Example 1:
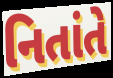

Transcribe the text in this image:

નિતાંતે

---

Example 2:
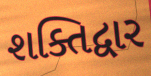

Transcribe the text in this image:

શક્તિદ્વાર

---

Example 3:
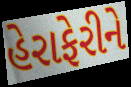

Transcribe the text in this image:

હેરાફેરીને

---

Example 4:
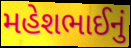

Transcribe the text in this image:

મહેશભાઈનું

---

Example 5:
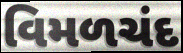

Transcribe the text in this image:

વિમળચંદ